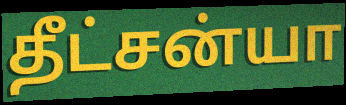
தீட்சன்யா